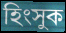
হিংসুক